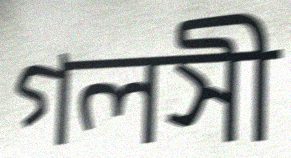
গলসী